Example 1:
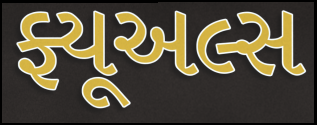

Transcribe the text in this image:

ફ્યૂઅલ્સ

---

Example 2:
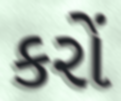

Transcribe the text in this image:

કરોં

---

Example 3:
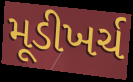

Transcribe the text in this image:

મૂડીખર્ચ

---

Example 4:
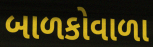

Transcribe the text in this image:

બાળકોવાળા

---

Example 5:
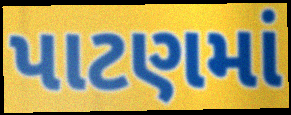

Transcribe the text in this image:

પાટણમાં